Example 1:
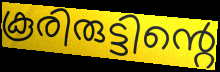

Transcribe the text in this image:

കൂരിരുട്ടിന്റെ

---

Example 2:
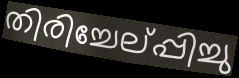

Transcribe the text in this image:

തിരിച്ചേല്പ്പിച്ചു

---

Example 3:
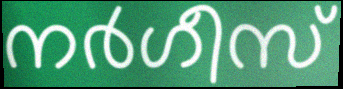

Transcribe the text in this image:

നർഗീസ്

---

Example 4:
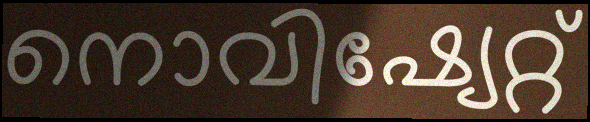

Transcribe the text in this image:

നൊവിഷ്യേറ്റ്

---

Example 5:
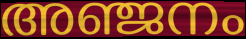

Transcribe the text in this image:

അഞ്ജനം